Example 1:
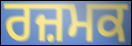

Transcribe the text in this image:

ਰਜ਼ਮਕ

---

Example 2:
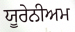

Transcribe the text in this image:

ਯੂਰੇਨੀਅਮ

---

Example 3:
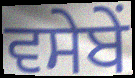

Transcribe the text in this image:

ਵਸੇਬੇਂ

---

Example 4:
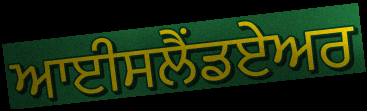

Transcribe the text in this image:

ਆਈਸਲੈਂਡਏਅਰ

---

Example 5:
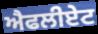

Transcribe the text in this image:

ਐਫਲੀਏਟ